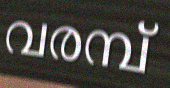
വരമ്പ്